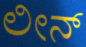
ಲೀನ್